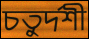
চতুৰ্দশী